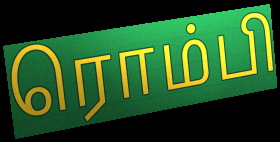
ரொம்பி